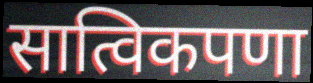
सात्विकपणा